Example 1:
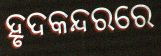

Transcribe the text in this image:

ହୃଦକନ୍ଦରରେ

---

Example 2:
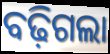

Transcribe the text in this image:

ବଢ଼ିଗଲା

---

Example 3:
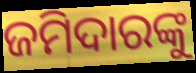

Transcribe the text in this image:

ଜମିଦାରଙ୍କୁ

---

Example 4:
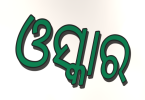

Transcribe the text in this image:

ଓସ୍କାର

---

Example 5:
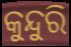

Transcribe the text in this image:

କୁନ୍ଦୁରି